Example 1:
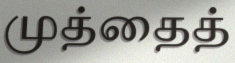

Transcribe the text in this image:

முத்தைத்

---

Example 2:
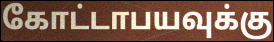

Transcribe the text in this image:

கோட்டாபயவுக்கு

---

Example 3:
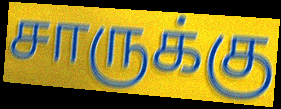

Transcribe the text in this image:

சாருக்கு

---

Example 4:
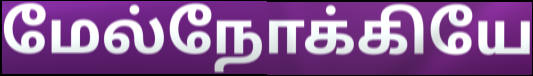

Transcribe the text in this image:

மேல்நோக்கியே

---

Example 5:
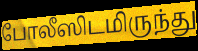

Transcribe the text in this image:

போலீஸிடமிருந்து